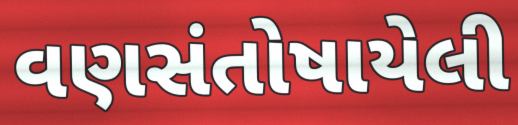
વણસંતોષાયેલી